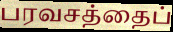
பரவசத்தைப்